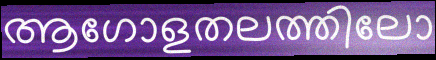
ആഗോളതലത്തിലോ